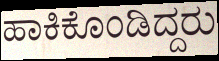
ಹಾಕಿಕೊಂಡಿದ್ದರು